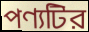
পণ্যটির